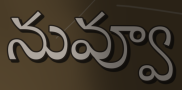
నువ్వూ